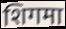
शिगमा